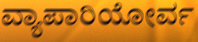
ವ್ಯಾಪಾರಿಯೋರ್ವ